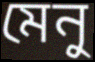
মেনু